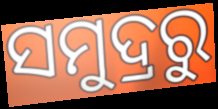
ସମୁଦ୍ରରୁ